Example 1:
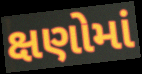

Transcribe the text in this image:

ક્ષણોમાં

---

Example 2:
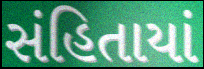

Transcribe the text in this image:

સંહિતાયાં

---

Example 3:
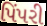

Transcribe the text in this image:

પિંપરી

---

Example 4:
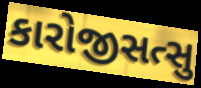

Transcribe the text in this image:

કારોજીસત્સુ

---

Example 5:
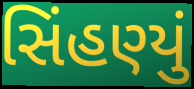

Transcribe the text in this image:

સિંહણ્યું